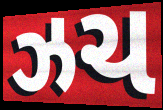
ઝચ